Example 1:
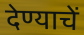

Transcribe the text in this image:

देण्याचें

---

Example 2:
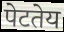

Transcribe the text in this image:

पेटतेय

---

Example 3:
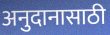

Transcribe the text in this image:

अनुदानासाठी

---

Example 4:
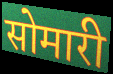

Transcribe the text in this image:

सोमारी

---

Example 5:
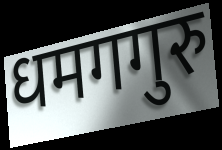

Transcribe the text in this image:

धमगगुरु